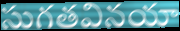
సుగతవినయా